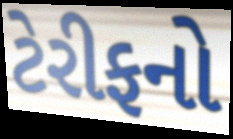
ટેરીફનો